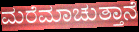
ಮರೆಮಾಚುತ್ತಾನೆ